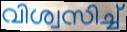
വിശ്വസിച്ച്